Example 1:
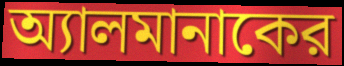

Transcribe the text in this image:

অ্যালমানাকের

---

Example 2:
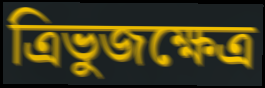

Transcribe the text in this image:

ত্রিভুজক্ষেত্র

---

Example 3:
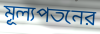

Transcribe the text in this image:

মূল্যপতনের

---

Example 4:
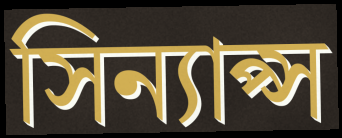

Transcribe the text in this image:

সিন্যাপ্স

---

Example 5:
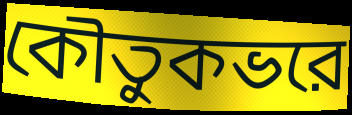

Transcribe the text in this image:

কৌতুকভরে